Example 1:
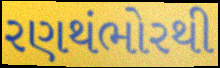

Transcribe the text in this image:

રણથંભોરથી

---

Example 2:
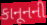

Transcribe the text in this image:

કાનૂનની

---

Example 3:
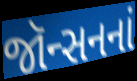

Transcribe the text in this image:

જૉન્સનનાં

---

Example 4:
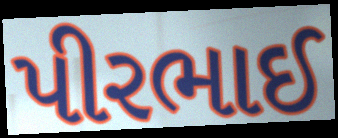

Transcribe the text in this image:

પીરભાઈ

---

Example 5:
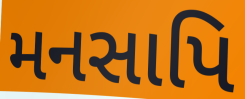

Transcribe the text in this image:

મનસાપિ